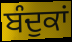
ਬੰਦੁਕਾਂ